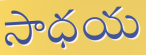
సాధయ